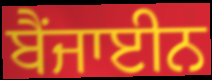
ਬੈਂਜਾਈਨ